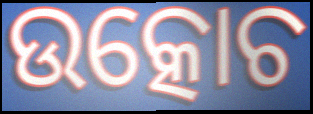
ଉତ୍କୋଚ